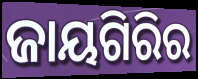
ଜାୟଗିରିର